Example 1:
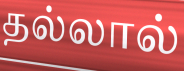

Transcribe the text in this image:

தல்லால்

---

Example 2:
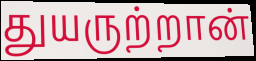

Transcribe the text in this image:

துயருற்றான்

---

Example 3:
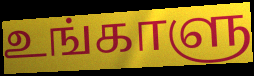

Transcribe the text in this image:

உங்காளு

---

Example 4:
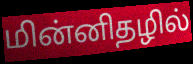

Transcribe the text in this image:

மின்னிதழில்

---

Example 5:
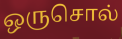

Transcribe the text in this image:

ஒருசொல்